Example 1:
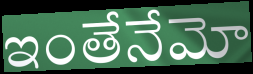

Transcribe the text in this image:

ఇంతేనేమో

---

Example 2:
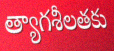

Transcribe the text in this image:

త్యాగశీలతకు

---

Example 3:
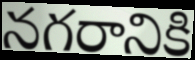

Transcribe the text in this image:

నగరానికి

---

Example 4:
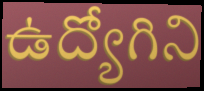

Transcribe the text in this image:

ఉద్యోగిని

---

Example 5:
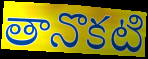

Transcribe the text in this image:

తానొకటి